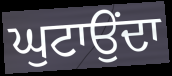
ਘੁਟਾਉਂਦਾ